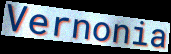
Vernonia